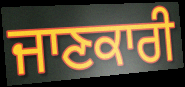
ਜਾਣਕਾਰੀ